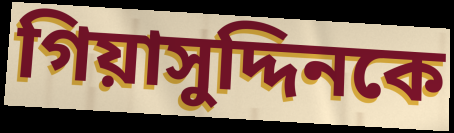
গিয়াসুদ্দিনকে